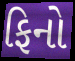
ફિનો